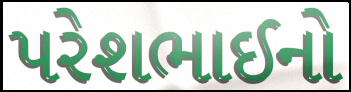
પરેશભાઈનો